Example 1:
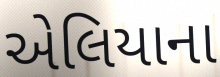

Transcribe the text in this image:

એલિયાના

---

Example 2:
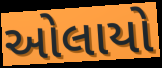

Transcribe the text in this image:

ઓલાયો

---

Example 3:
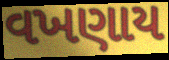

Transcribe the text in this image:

વખણાય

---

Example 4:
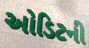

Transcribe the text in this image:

ઓડિટની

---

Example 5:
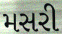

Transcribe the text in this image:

મસરી